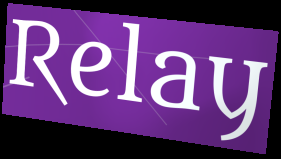
Relay